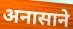
अनासाने